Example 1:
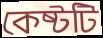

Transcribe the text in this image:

কেষ্টটি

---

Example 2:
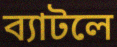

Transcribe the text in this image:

ব্যাটলে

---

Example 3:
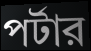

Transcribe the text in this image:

পর্টার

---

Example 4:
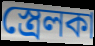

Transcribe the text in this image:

স্ত্রেলকা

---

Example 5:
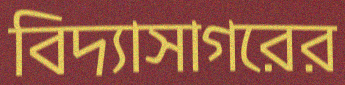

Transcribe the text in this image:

বিদ্যাসাগরের